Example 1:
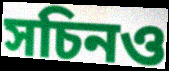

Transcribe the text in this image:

সচিনও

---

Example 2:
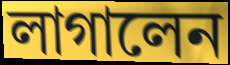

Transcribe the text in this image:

লাগালেন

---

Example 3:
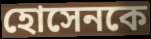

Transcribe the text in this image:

হোসেনকে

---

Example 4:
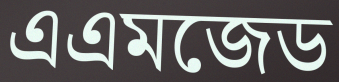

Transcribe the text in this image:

এএমজেড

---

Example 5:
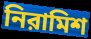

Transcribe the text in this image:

নিরামিশ